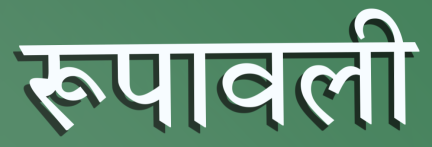
रूपावली